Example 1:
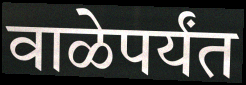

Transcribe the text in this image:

वाळेपर्यंत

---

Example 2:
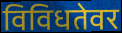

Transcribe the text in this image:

विविधतेवर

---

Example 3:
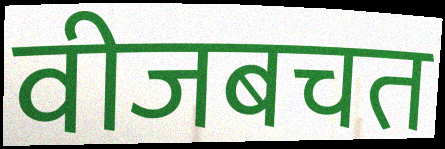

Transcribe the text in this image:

वीजबचत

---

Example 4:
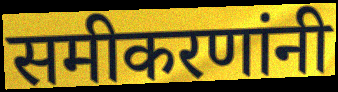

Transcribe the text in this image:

समीकरणांनी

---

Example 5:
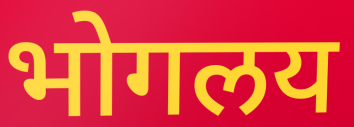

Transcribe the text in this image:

भोगलय